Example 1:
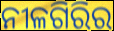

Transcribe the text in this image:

ନୀଳଗିରିର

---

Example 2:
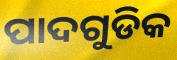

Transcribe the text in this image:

ପାଦଗୁଡିକ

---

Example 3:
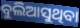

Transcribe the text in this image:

ବୁଲିଆସୁଥିବା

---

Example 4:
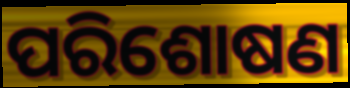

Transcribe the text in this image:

ପରିଶୋଷଣ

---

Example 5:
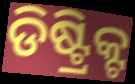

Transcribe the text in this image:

ଡିଷ୍ଟ୍ରିକ୍ଟ